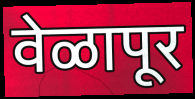
वेळापूर